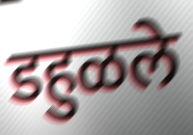
डहुळले